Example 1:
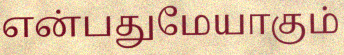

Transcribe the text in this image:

என்பதுமேயாகும்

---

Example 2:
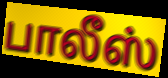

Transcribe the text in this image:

பாலீஸ்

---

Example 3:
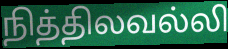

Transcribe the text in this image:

நித்திலவல்லி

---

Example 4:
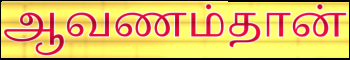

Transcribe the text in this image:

ஆவணம்தான்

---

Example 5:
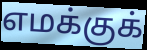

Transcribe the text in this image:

எமக்குக்